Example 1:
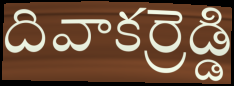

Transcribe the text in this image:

దివాకర్రెడ్డి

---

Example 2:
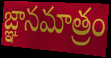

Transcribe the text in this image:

జ్ఞానమాత్రం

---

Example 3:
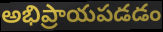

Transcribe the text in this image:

అభిప్రాయపడడం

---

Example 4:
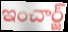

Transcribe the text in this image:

ఇంచార్జ్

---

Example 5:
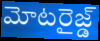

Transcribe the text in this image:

మోటరైజ్డ్